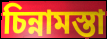
চিন্নামস্তা